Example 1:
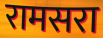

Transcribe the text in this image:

रामसरा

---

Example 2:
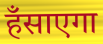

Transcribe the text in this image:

हँसाएगा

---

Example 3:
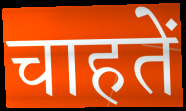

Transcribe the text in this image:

चाहतें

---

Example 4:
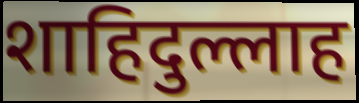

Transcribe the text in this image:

शाहिदुल्लाह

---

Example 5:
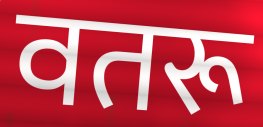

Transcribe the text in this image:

वतरू